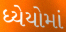
ધ્યેયોમાં